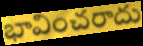
భావించరాదు